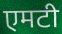
एमटी